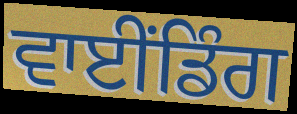
ਵਾਈਂਡਿੰਗ